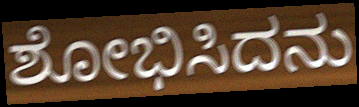
ಶೋಭಿಸಿದನು